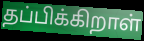
தப்பிக்கிறாள்